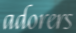
adorers